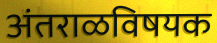
अंतराळविषयक